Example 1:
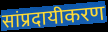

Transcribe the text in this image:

सांप्रदायीकरण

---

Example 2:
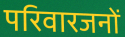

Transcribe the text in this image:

परिवारजनों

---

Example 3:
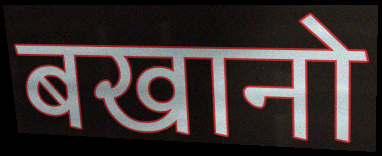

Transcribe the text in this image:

बखानो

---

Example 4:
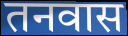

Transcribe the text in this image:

तनवास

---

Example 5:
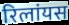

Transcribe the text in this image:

रिलांयस